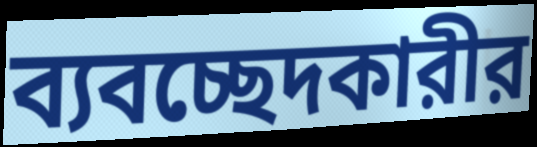
ব্যবচ্ছেদকারীর